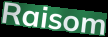
Raisom